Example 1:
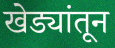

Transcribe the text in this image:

खेड्यांतून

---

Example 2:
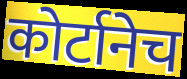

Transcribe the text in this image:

कोर्टानेच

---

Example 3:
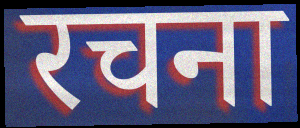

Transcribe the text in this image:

रचना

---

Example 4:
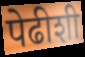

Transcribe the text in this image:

पेढीशी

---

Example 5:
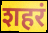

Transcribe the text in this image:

शहरं